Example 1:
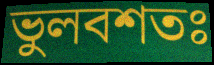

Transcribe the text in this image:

ভুলবশতঃ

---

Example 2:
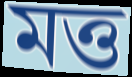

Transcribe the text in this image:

মত্ত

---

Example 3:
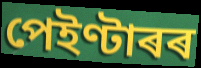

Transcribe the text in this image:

পেইণ্টাৰৰ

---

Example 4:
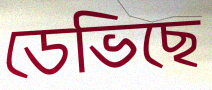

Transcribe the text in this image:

ডেভিছে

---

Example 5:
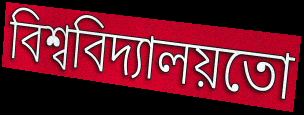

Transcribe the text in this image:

বিশ্ববিদ্যালয়তো